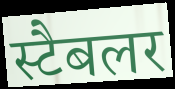
स्टैबलर